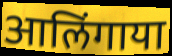
आलिंगाया